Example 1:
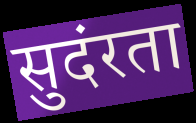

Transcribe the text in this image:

सुदंरता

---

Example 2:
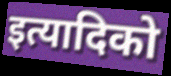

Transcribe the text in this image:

इत्यादिको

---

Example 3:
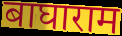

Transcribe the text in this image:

बाघाराम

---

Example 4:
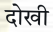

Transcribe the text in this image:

दोखी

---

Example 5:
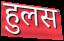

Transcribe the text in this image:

हुलस